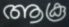
ആകൂ